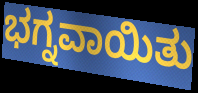
ಭಗ್ನವಾಯಿತು